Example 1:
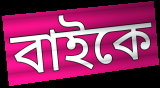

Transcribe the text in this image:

বাইকে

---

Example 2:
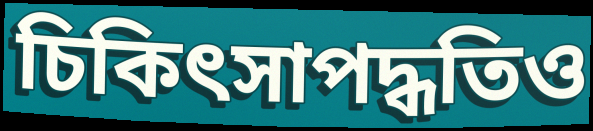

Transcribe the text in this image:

চিকিৎসাপদ্ধতিও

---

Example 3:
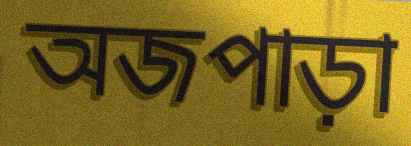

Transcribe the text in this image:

অজপাড়া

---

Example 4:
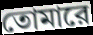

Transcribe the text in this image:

তোমারে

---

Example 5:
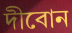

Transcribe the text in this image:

দীবোন